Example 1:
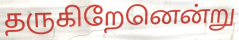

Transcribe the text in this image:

தருகிறேனென்று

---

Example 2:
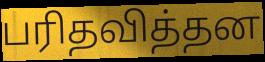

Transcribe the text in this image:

பரிதவித்தன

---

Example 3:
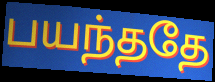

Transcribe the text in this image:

பயந்ததே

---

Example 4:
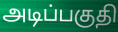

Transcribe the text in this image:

அடிப்பகுதி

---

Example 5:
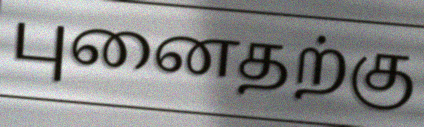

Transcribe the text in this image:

புனைதற்கு